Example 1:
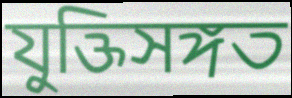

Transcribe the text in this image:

যুক্তিসঙ্গত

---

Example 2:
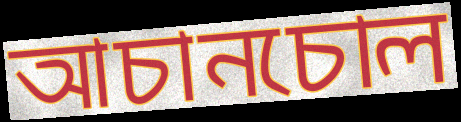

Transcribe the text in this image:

আচানচোল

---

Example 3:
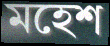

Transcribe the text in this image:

মহেশ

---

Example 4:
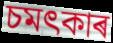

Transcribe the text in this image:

চমৎকাৰ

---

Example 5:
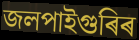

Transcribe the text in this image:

জলপাইগুৰিৰ